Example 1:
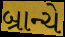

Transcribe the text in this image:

બ્રાન્ચે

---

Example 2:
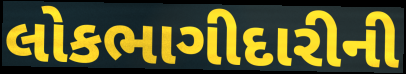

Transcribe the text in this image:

લોકભાગીદારીની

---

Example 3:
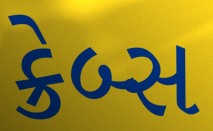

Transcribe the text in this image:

ક્રેબ્સ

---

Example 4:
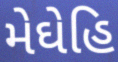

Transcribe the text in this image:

મેઘેહિ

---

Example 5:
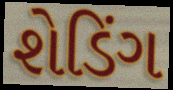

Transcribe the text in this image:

શેડિંગ